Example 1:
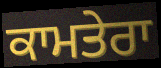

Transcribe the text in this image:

ਕਾਮਤੇਰਾ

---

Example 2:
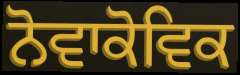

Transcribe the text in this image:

ਨੋਵਾਕੋਵਿਕ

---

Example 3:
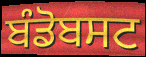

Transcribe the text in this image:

ਬੰਡੋਬਸਟ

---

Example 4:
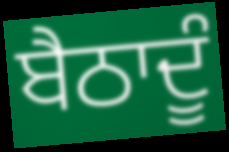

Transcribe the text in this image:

ਬੈਠਾਦੂੰ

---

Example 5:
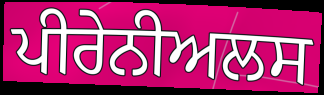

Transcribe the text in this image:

ਪੀਰੇਨੀਅਲਸ